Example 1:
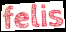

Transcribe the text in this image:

felis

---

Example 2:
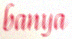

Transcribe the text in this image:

banya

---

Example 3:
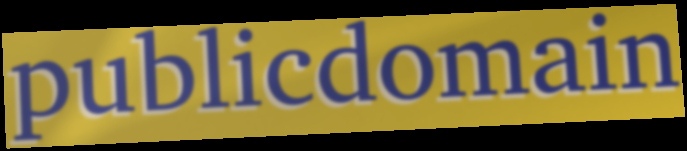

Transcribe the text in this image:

publicdomain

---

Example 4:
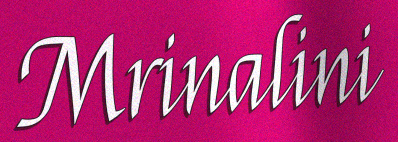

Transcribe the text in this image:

Mrinalini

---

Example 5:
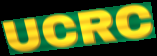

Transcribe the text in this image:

UCRC